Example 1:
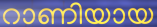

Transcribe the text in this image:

റാണിയായ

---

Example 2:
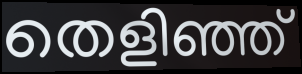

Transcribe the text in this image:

തെളിഞ്ഞ്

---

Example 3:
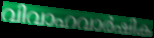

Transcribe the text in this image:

വിവാഹവാർഷിക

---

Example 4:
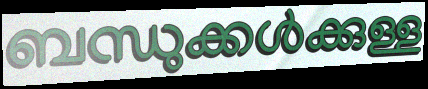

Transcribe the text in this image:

ബന്ധുക്കൾക്കുള്ള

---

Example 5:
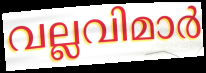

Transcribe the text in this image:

വല്ലവിമാർ